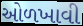
ઓળખાવી